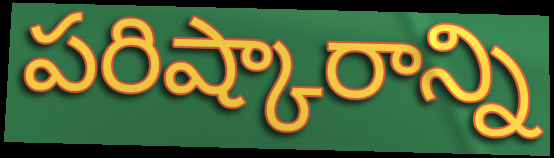
పరిష్కారాన్ని